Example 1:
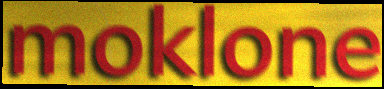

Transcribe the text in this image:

moklone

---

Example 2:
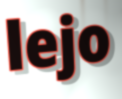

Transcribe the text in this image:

lejo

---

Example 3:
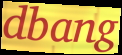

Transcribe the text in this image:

dbang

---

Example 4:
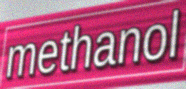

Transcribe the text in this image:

methanol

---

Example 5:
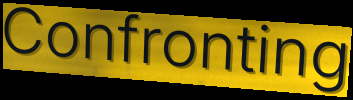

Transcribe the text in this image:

Confronting